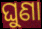
ଘୁଣା